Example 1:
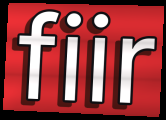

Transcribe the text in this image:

fiir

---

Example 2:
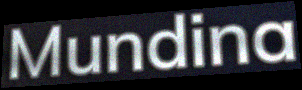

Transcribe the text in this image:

Mundina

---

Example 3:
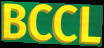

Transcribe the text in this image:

BCCL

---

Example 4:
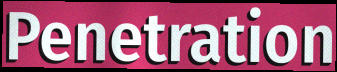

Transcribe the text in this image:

Penetration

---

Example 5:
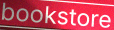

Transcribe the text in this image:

bookstore